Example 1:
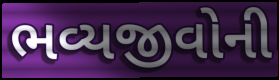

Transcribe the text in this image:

ભવ્યજીવોની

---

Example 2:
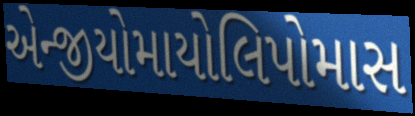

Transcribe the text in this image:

એન્જીયોમાયોલિપોમાસ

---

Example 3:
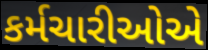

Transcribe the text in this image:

કર્મચારીઓએ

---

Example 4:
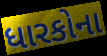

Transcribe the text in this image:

ધારકોના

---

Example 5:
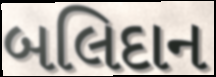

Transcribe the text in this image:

બલિદાન